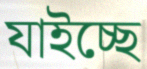
যাইচ্ছে